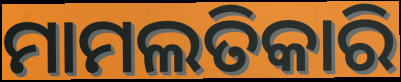
ମାମଲତିକାରି